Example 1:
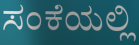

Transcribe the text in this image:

ಸಂಕೆಯಲ್ಲಿ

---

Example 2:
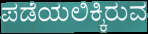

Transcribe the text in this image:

ಪಡೆಯಲಿಕ್ಕಿರುವ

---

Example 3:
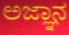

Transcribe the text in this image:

ಅಜ್ಞಾನ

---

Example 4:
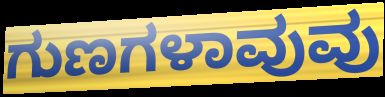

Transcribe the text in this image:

ಗುಣಗಳಾವುವು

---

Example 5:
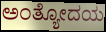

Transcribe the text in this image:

ಅಂತ್ಯೋದಯ